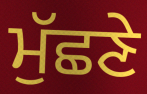
ਮੁੱਛਣੇ